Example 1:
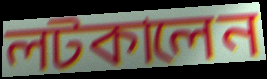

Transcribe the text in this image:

লটকালেন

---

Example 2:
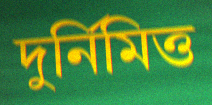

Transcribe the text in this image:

দুর্নিমিত্ত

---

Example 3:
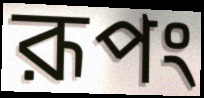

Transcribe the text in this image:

রূপং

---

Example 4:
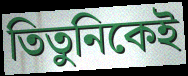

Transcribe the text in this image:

তিতুনিকেই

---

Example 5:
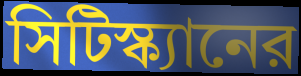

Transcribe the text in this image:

সিটিস্ক্যানের